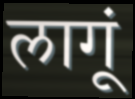
लागूं